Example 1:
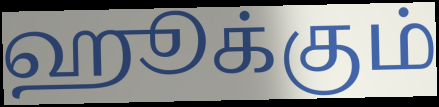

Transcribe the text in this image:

ஹூக்கும்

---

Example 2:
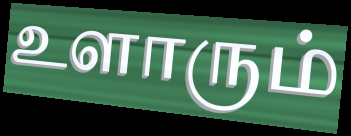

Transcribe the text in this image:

உளாரும்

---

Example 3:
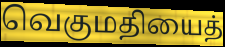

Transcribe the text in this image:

வெகுமதியைத்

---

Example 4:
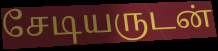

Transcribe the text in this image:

சேடியருடன்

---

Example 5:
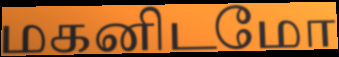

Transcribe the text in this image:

மகனிடமோ